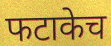
फटाकेच